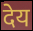
देय